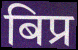
बिप्र